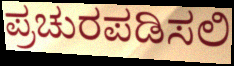
ಪ್ರಚುರಪಡಿಸಲಿ